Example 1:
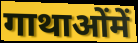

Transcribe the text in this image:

गाथाओंमें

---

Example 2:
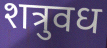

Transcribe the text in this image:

शत्रुवध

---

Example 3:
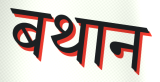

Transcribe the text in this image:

बथान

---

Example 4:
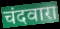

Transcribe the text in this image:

चंदवारा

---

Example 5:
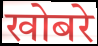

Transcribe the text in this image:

खोबरे